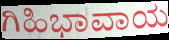
ಗಿಹಿಭಾವಾಯ